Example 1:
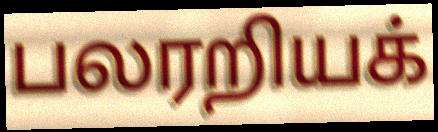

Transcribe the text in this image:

பலரறியக்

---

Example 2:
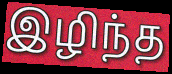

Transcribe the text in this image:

இழிந்த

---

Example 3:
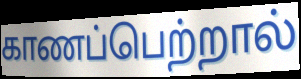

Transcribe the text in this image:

காணப்பெற்றால்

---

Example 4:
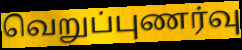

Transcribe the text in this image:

வெறுப்புணர்வு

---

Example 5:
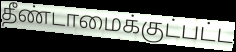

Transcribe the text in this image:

தீண்டாமைக்குட்பட்ட